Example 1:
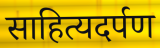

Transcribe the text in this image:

साहित्यदर्पण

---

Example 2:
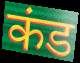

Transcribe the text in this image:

कंड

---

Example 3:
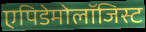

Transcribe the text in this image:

एपिडेमोलॉजिस्ट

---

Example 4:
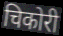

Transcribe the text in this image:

चिकोरी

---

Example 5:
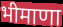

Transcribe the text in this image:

भीमाणा